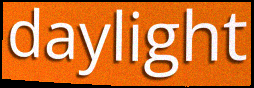
daylight